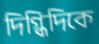
দিগ্ধিদিকে